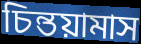
চিন্তয়ামাস